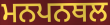
ਮਨਪਨਥਲ